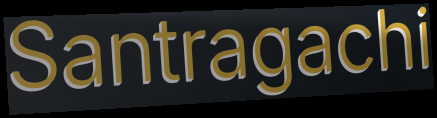
Santragachi